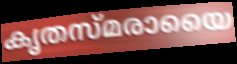
കൃതസ്മരായൈ